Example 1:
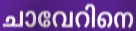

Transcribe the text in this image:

ചാവേറിനെ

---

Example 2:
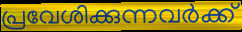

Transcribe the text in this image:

പ്രവേശിക്കുന്നവർക്ക്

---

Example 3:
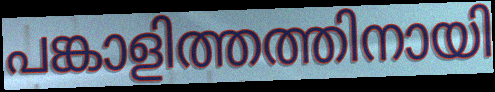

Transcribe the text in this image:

പങ്കാളിത്തത്തിനായി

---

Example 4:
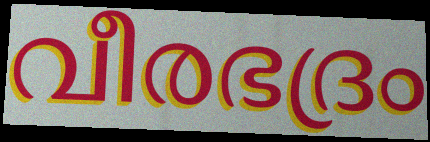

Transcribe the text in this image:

വീരഭദ്രം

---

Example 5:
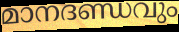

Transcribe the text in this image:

മാനദണ്ഡവും